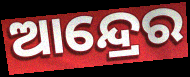
ଆନ୍ଦ୍ରେର